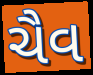
ચૈવ